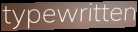
typewritten